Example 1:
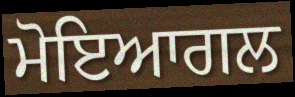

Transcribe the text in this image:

ਮੋਇਆਗਲ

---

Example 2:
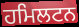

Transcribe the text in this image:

ਹਮਿਲਟਨ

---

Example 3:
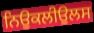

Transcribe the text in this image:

ਨਿਉਕਲੀਉਲਸ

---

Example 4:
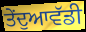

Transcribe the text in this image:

ਤੇਂਦੁਆਵੱਡੀ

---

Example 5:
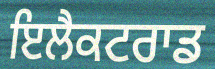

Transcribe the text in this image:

ਇਲੈਕਟਰਾਡ